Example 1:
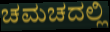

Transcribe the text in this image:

ಚಮಚದಲ್ಲಿ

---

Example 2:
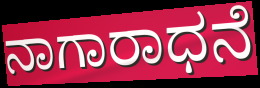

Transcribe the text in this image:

ನಾಗಾರಾಧನೆ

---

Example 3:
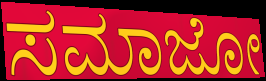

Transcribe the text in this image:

ಸಮಾಜೋ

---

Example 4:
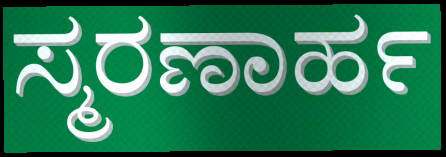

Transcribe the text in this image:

ಸ್ಮರಣಾರ್ಹ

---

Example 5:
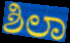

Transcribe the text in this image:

ಶಿಲಾ